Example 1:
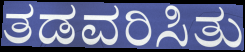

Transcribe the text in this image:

ತಡವರಿಸಿತು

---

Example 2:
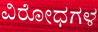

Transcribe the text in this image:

ವಿರೋಧಗಳ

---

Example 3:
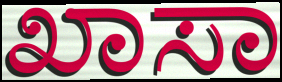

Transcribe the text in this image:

ಖಾಸಾ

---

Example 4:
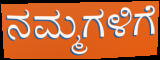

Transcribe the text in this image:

ನಮ್ಮಗಳಿಗೆ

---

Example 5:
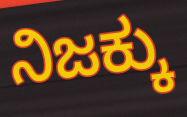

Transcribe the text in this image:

ನಿಜಕ್ಕು